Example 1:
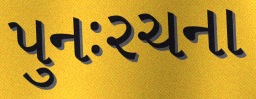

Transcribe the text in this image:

પુનઃરચના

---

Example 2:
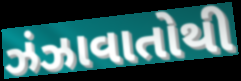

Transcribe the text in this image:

ઝંઝાવાતોથી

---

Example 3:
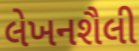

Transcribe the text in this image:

લેખનશૈલી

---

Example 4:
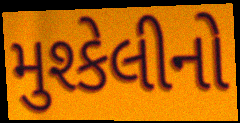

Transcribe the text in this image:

મુશ્કેલીનો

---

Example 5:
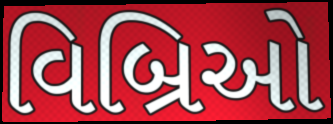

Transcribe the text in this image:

વિબ્રિઓ